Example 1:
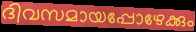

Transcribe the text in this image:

ദിവസമായപ്പോഴേക്കും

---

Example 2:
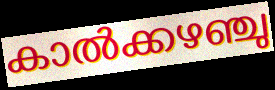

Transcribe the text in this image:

കാൽക്കഴഞ്ചു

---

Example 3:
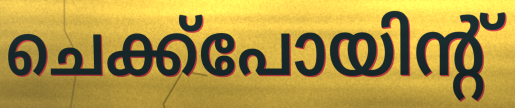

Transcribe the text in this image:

ചെക്ക്പോയിന്റ്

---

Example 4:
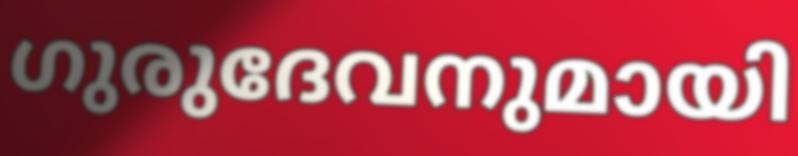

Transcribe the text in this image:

ഗുരുദേവനുമായി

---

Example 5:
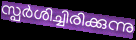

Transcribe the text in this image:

സ്പർശിച്ചിരിക്കുന്നു